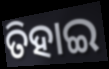
ତିହାଇ